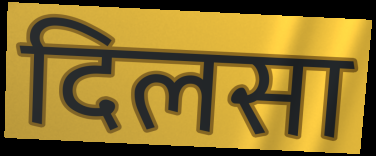
दिलसा